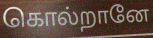
கொல்றானே